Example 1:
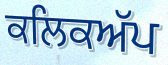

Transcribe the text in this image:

ਕਲਿਕਅੱਪ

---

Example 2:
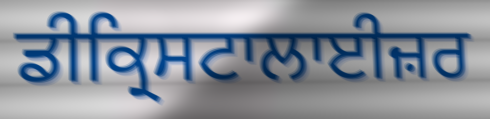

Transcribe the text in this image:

ਡੀਕ੍ਰਿਸਟਾਲਾਈਜ਼ਰ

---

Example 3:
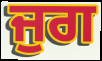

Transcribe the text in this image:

ਜੁਗ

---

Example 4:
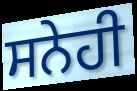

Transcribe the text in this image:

ਸਨੇਹੀ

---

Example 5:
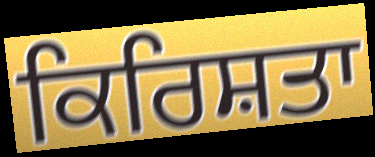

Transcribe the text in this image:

ਕਿਰਿਸ਼ਤਾ